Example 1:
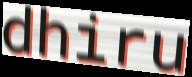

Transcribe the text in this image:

dhiru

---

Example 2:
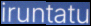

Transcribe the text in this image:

iruntatu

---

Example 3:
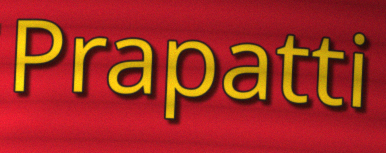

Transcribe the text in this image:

Prapatti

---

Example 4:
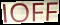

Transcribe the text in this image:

IOFF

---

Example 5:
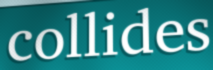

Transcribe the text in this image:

collides